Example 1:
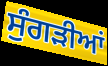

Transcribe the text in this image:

ਸੁੰਗੜੀਆਂ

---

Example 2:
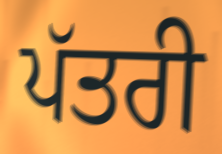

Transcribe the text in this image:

ਪੱਤਰੀ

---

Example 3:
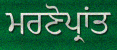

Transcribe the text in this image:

ਮਰਣੋਪ੍ਰਾਂਤ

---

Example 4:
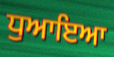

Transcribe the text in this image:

ਧੁਆਇਆ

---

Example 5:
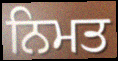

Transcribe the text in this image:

ਨਿਮਤ